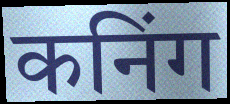
कनिंग